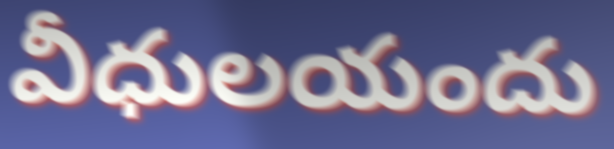
వీధులయందు